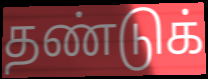
தண்டுக்